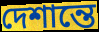
দেশান্তে